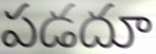
పడదూ